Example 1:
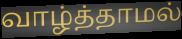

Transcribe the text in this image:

வாழ்த்தாமல்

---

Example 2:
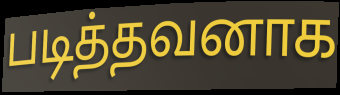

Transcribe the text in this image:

படித்தவனாக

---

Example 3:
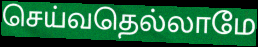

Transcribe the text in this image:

செய்வதெல்லாமே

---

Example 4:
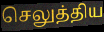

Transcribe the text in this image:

செலுத்திய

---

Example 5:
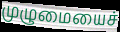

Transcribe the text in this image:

முழுமையைச்